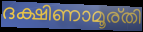
ദക്ഷിണാമൂര്തി